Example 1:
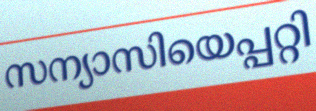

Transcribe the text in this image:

സന്യാസിയെപ്പറ്റി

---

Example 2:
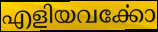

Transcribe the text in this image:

എളിയവൎക്കോ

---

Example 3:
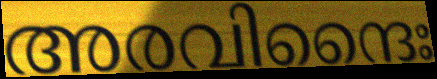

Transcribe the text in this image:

അരവിന്ദൈഃ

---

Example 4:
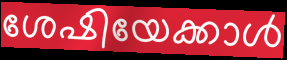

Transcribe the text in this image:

ശേഷിയേക്കാൾ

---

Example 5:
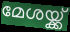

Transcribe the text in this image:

മേശയ്ക്ക്